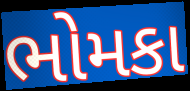
ભોમકા